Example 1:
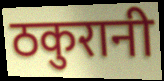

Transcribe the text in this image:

ठकुरानी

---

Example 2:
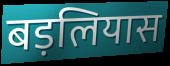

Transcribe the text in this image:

बड़लियास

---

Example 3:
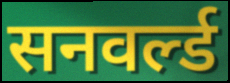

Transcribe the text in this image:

सनवर्ल्ड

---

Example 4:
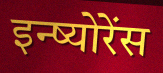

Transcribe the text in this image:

इन्ष्योरेंस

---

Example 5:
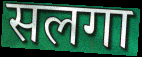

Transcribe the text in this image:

सलगा